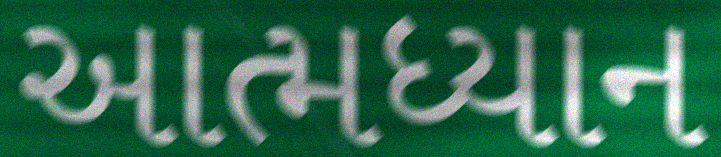
આત્મધ્યાન